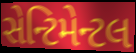
સેન્ટિમેન્ટલ